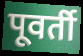
पूवर्ती